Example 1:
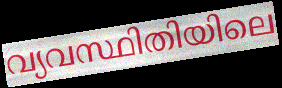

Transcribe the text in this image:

വ്യവസ്ഥിതിയിലെ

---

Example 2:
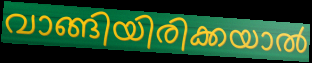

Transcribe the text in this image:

വാങ്ങിയിരിക്കയാൽ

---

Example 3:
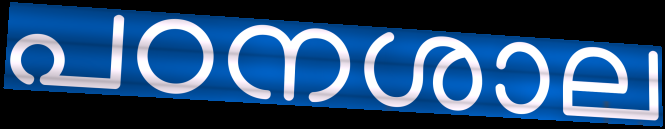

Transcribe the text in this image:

പഠനശാല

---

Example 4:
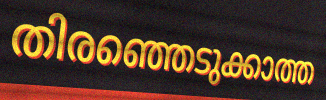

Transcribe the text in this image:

തിരഞ്ഞെടുക്കാത്ത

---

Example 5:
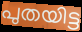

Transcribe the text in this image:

പുതയിട്ട